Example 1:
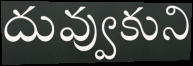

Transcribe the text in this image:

దువ్వుకుని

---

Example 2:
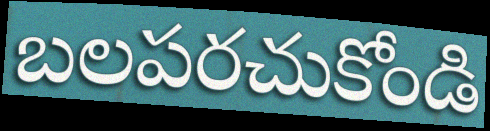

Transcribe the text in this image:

బలపరచుకోండి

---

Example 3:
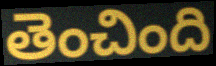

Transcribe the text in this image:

తెంచింది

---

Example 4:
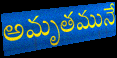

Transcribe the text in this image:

అమృతమునే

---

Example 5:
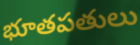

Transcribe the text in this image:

భూతపతులు